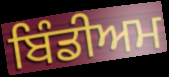
ਬਿੰਡੀਅਮ